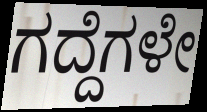
ಗದ್ದೆಗಳೇ